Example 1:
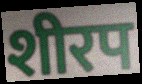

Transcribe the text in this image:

शीरप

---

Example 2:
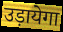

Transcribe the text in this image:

उड़ायेगा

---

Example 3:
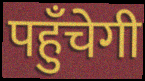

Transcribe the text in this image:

पहुँचेगी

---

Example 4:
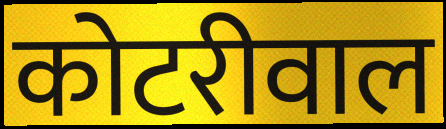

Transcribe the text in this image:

कोटरीवाल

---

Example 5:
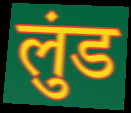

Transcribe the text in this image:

लुंड